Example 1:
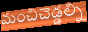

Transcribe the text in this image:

మంచిచెడ్డల్ని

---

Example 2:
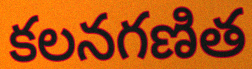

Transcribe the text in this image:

కలనగణిత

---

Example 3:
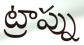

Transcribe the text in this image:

ట్రాప్ను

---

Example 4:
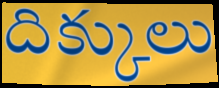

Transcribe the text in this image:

దిక్కులు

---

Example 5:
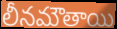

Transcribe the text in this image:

లీనమౌతాయి